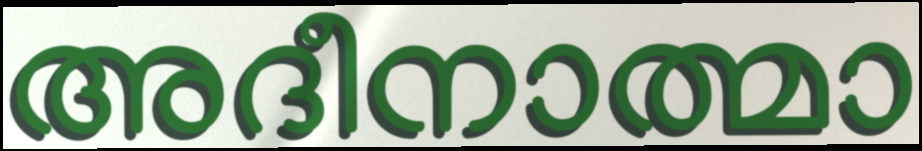
അദീനാത്മാ